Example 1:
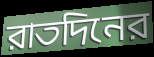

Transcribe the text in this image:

রাতদিনের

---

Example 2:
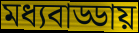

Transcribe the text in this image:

মধ্যবাড্ডায়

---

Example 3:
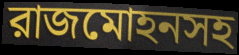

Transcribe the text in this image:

রাজমোহনসহ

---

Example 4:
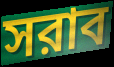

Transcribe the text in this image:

সরাব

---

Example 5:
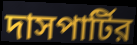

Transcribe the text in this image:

দাসপার্টির